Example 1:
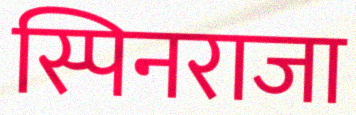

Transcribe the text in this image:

स्पिनराजा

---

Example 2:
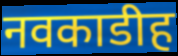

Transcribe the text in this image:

नवकाडीह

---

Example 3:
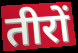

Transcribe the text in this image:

तीरों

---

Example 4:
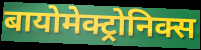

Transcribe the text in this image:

बायोमेक्ट्रोनिक्स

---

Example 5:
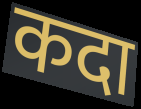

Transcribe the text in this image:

कदा